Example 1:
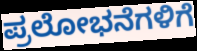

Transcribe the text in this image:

ಪ್ರಲೋಭನೆಗಳಿಗೆ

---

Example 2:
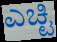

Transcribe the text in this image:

ಎಚ್ಟಿ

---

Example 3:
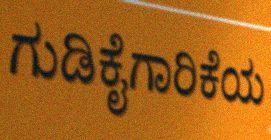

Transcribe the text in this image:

ಗುಡಿಕೈಗಾರಿಕೆಯ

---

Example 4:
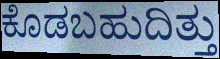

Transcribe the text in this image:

ಕೊಡಬಹುದಿತ್ತು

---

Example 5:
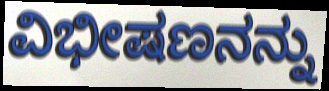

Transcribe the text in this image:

ವಿಭೀಷಣನನ್ನು